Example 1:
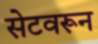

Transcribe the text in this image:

सेटवरून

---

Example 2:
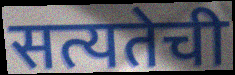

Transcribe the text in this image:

सत्यतेची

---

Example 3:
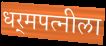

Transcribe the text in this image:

धर्मपत्नीला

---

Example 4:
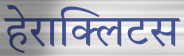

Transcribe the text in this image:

हेराक्लिटस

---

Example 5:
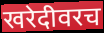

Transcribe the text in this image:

खरेदीवरच